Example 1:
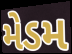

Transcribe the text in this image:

મેડમ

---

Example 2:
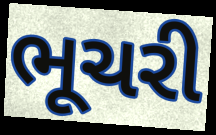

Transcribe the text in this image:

ભૂચરી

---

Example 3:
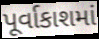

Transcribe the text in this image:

પૂર્વાકાશમાં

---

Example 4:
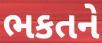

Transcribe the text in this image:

ભકતને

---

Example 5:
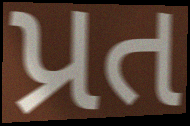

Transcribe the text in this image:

પ્રત